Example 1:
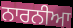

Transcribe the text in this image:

ਨਾਰਨੀਆ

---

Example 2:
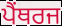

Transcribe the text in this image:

ਪੈਂਥਰਜ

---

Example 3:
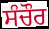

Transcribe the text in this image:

ਸੰਚੌਰ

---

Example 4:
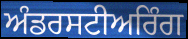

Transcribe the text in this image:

ਅੰਡਰਸਟੀਅਰਿੰਗ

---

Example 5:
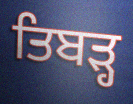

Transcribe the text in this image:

ਤਿਬੜ੍ਹ